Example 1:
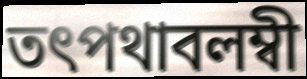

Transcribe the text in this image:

তৎপথাবলম্বী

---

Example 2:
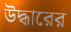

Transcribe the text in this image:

উদ্ধারের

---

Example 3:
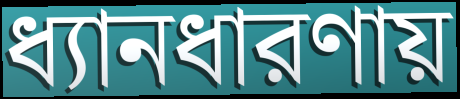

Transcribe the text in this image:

ধ্যানধারণায়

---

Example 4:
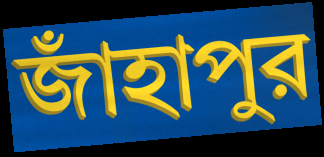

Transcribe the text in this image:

জাঁহাপুর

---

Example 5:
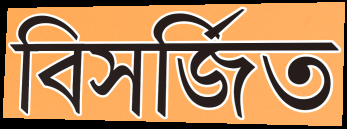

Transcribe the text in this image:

বিসর্জিত